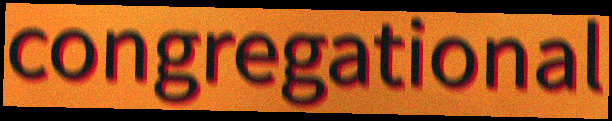
congregational